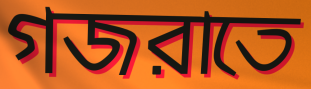
গজরাতে